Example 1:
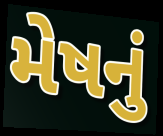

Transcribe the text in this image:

મેષનું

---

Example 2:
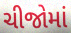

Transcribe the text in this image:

ચીજોમાં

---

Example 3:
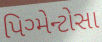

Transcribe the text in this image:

પિગ્મેન્ટોસા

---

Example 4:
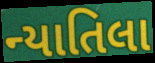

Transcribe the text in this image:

ન્યાતિલા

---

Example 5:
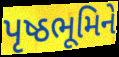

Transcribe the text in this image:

પૃષ્ઠભૂમિને